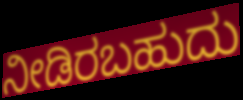
ನೀಡಿರಬಹುದು